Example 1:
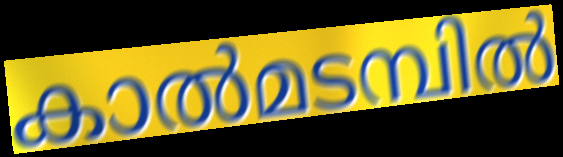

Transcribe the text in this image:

കാൽമടമ്പിൽ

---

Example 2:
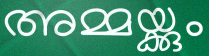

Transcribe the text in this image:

അമ്മയ്ക്കും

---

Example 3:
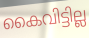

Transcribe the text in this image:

കൈവിട്ടില്ല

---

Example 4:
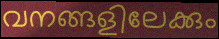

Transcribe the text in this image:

വനങ്ങളിലേക്കും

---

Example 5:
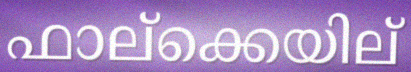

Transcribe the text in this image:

ഫാല്ക്കെയില്